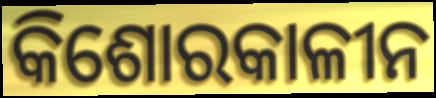
କିଶୋରକାଳୀନ